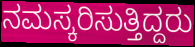
ನಮಸ್ಕರಿಸುತ್ತಿದ್ದರು